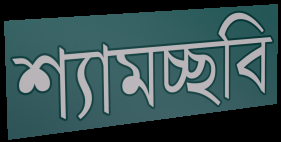
শ্যামচ্ছবি